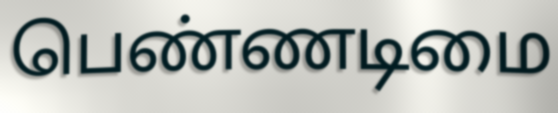
பெண்ணடிமை